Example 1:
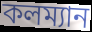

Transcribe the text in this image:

কলম্যান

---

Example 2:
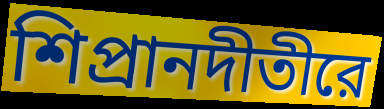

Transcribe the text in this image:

শিপ্রানদীতীরে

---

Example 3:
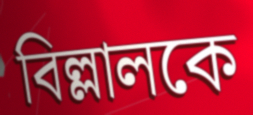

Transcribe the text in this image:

বিল্লালকে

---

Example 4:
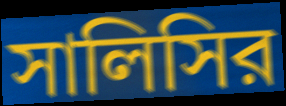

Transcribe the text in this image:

সালিসির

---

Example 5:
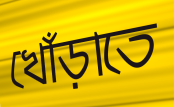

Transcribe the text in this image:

খোঁড়াতে